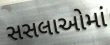
સસલાઓમાં